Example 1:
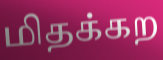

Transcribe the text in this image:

மிதக்கற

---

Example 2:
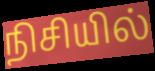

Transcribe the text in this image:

நிசியில்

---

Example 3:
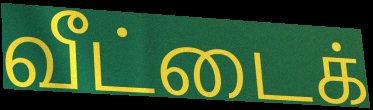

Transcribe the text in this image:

வீட்டைக்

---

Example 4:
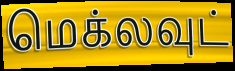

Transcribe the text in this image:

மெக்லவுட்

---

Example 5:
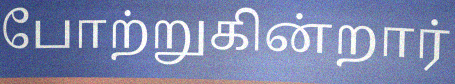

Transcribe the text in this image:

போற்றுகின்றார்